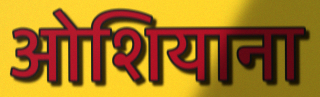
ओशियाना